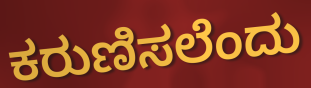
ಕರುಣಿಸಲೆಂದು